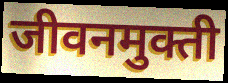
जीवनमुक्ती